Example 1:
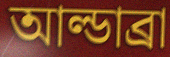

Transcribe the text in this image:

আল্ডাব্রা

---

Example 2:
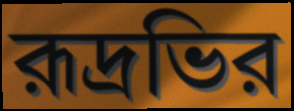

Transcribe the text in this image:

রূদ্রভির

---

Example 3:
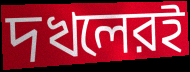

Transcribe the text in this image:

দখলেরই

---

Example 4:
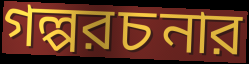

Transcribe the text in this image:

গল্পরচনার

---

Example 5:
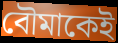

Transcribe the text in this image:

বৌমাকেই